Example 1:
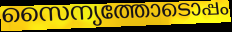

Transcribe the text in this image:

സൈന്യത്തോടൊപ്പം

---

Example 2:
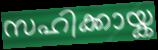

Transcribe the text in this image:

സഹിക്കായ്ക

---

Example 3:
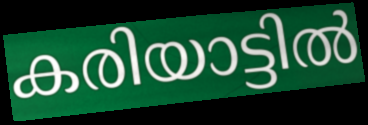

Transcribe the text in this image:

കരിയാട്ടിൽ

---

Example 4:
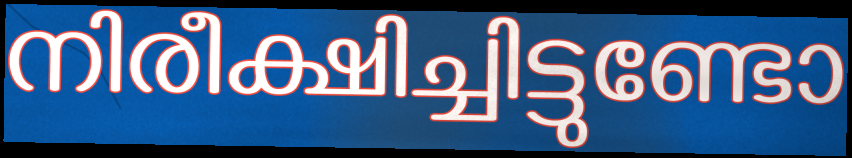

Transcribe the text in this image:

നിരീക്ഷിച്ചിട്ടുണ്ടോ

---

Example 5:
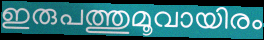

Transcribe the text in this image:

ഇരുപത്തുമൂവായിരം